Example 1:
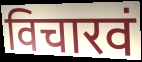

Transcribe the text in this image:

विचारवं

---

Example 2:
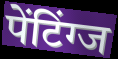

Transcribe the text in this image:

पेंटिंग्ज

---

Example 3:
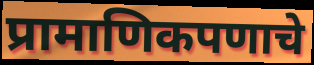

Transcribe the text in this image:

प्रामाणिकपणाचे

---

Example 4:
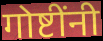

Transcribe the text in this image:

गोष्टींनी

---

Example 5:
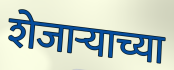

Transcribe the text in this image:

शेजाऱ्याच्या